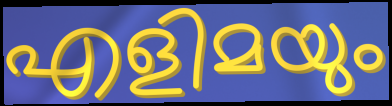
എളിമയും